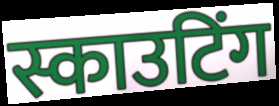
स्काउटिंग